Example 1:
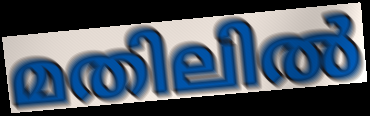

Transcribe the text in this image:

മതിലിൽ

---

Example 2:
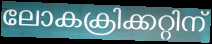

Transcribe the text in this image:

ലോകക്രിക്കറ്റിന്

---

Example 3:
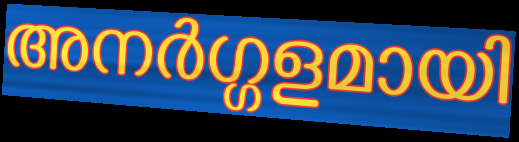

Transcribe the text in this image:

അനർഗ്ഗളമായി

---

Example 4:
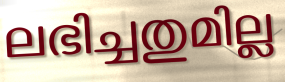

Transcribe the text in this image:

ലഭിച്ചതുമില്ല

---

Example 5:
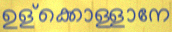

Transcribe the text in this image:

ഉള്ക്കൊള്ളാനേ